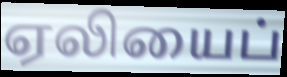
ஏலியைப்